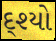
દ્શ્યો